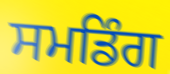
ਸਮਡਿੰਗ